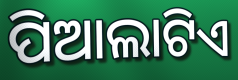
ପିଆଲାଟିଏ